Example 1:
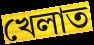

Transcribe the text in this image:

খেলাত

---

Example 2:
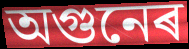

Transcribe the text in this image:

অগুনেৰ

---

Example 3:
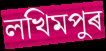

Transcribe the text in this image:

লখিমপুৰ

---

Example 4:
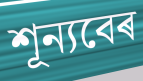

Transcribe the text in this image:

শূন্যবেৰ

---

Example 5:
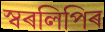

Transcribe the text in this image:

স্বৰলিপিৰ